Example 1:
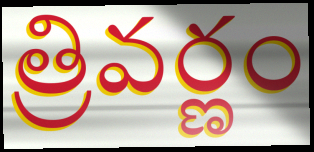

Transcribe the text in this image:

త్రివర్ణం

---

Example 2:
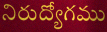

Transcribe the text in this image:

నిరుద్యోగము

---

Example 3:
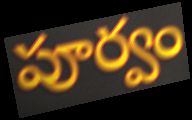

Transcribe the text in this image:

పూర్వం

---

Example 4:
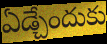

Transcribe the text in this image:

ఏడ్చేందుకు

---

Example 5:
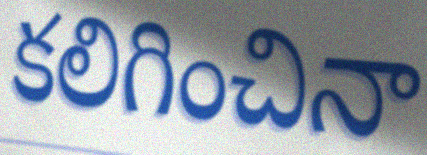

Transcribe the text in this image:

కలిగించినా